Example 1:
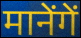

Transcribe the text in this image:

मानेंगें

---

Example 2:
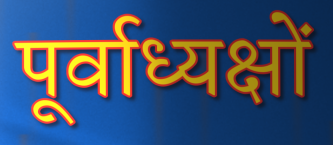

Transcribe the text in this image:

पूर्वाध्यक्षों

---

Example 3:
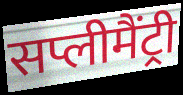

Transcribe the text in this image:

सप्लीमैंट्री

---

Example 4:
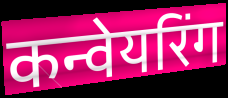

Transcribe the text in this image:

कन्वेयरिंग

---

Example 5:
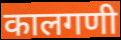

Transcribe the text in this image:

कालगणी